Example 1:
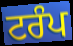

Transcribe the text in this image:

ਟਰੰਪ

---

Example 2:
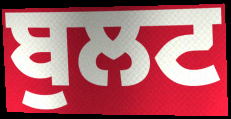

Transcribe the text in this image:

ਬੁਲਟ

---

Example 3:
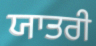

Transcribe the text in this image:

ਯਾਤਰੀ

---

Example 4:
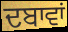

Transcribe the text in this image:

ਦਬਾਵਾਂ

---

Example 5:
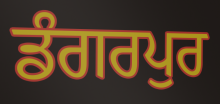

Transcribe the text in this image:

ਡੰਗਰਪੁਰ